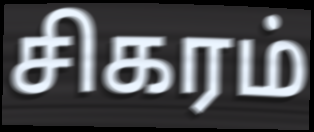
சிகரம்